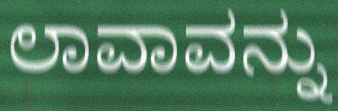
ಲಾವಾವನ್ನು